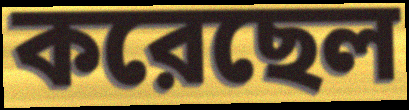
করেছেল